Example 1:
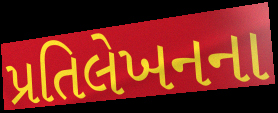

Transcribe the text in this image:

પ્રતિલેખનના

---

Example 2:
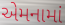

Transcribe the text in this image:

એમનામાં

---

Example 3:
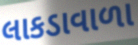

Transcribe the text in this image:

લાકડાવાળા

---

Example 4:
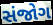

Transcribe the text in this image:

સંજોગ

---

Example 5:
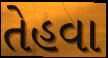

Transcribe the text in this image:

તેહવા